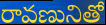
రావణునితో